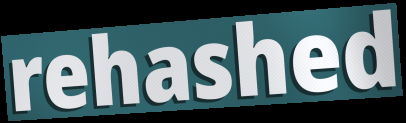
rehashed